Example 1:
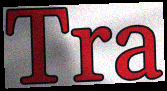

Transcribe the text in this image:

Tra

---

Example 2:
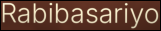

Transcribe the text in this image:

Rabibasariyo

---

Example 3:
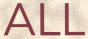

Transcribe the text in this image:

ALL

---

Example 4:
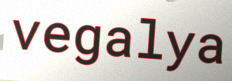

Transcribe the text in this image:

vegalya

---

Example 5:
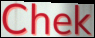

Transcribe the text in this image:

Chek